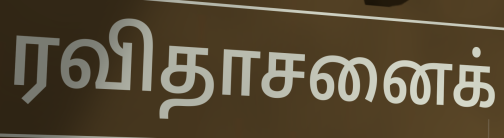
ரவிதாசனைக்